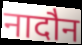
नादौन